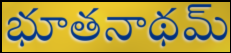
భూతనాథమ్